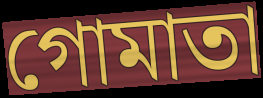
গোমাতা